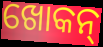
ଖୋକନ୍